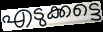
എടുക്കട്ടെ